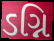
ઽગ્નિ